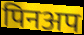
पिनअप